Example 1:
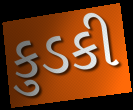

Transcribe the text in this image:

કુડકી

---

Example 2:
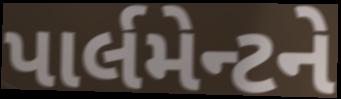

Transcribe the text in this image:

પાર્લમેન્ટને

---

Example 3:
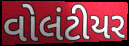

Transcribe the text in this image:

વોલંટીયર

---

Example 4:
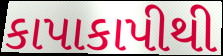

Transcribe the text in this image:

કાપાકાપીથી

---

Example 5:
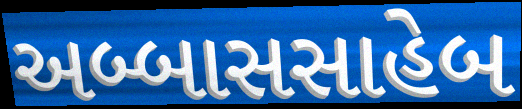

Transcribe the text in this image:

અબ્બાસસાહેબ